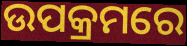
ଉପକ୍ରମରେ